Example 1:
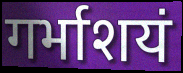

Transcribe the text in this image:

गर्भाशयं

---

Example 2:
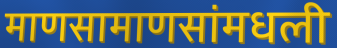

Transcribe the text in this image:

माणसामाणसांमधली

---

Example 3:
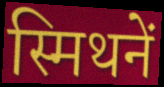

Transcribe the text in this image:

स्मिथनें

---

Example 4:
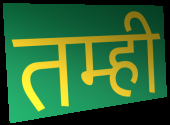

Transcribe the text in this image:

तम्ही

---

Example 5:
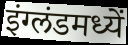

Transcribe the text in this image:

इंग्लंडमध्यें